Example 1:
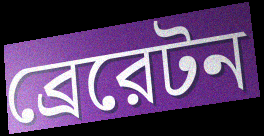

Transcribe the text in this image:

ব্রেরেটন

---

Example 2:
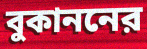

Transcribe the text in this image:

বুকাননের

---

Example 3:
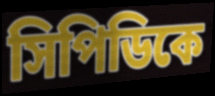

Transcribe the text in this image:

সিপিডিকে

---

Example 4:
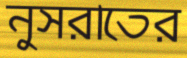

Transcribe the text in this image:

নুসরাতের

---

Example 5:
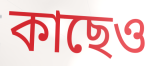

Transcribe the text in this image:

কাছেও